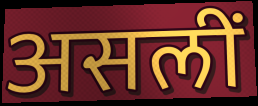
असलीं